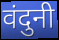
वंदुनी